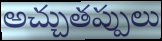
అచ్చుతప్పులు